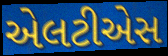
એલટીએસ